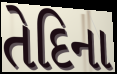
તેદિના